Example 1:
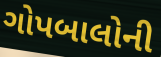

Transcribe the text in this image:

ગોપબાલોની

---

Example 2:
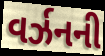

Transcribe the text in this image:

વર્ઝનની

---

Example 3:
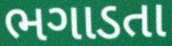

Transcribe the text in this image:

ભગાડતા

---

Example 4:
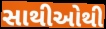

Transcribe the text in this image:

સાથીઓથી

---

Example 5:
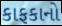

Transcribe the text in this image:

કાફકાનો